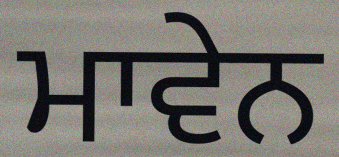
ਮਾਵੇਨ